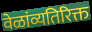
वेळांव्यतिरिक्त